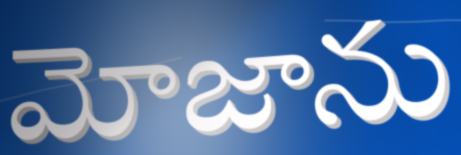
మోజాను